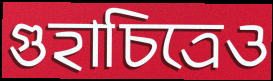
গুহাচিত্রেও